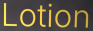
Lotion